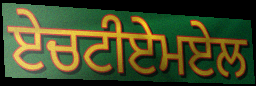
ਏਚਟੀਏਮਏਲ